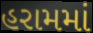
હરામમાં